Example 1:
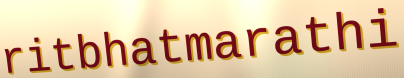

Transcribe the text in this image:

ritbhatmarathi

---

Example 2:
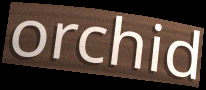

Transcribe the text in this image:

orchid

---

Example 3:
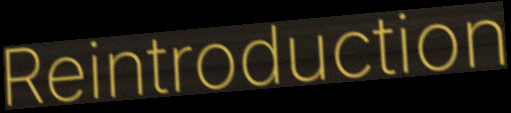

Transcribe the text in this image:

Reintroduction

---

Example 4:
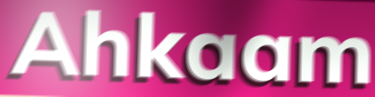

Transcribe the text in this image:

Ahkaam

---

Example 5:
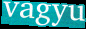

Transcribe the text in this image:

vagyu